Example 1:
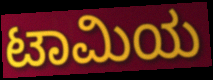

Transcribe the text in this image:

ಟಾಮಿಯ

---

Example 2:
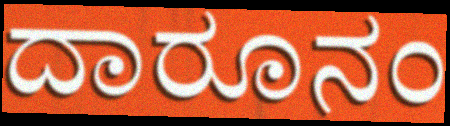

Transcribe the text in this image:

ದಾರೂನಂ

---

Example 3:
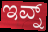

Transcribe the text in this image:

ಇವ್ನ್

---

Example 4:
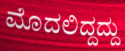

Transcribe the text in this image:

ಮೊದಲಿದ್ದದ್ದು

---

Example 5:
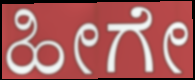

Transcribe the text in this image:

ಹೀಗೇ